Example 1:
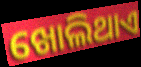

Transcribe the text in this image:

ଖୋଲିଥାଏ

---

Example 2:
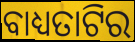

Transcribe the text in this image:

ବାଧ୍ୟତାଟିର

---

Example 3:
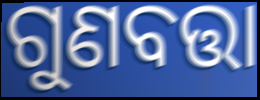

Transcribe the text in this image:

ଗୁଣବତ୍ତା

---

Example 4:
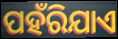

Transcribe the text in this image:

ପହଁରିଯାଏ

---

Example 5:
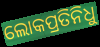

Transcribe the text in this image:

ଲୋକପ୍ରତିନିଧୁ